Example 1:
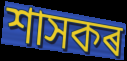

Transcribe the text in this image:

শাসকৰ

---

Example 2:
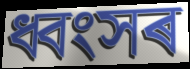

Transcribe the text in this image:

ধ্বংসৰ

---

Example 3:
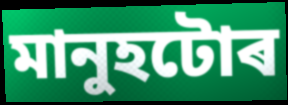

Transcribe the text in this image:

মানুহটোৰ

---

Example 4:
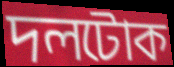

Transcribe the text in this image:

দলটোক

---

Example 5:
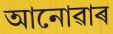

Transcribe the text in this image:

আনোৱাৰ